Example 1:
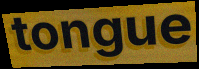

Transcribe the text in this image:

tongue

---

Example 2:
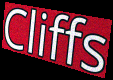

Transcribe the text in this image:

Cliffs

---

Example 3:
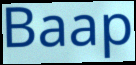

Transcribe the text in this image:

Baap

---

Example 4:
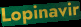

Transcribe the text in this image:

Lopinavir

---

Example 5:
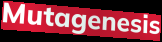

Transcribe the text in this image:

Mutagenesis